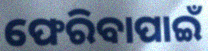
ଫେରିବାପାଇଁ